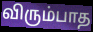
விரும்பாத